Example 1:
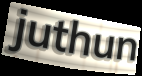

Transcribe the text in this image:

juthun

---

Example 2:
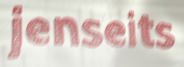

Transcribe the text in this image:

jenseits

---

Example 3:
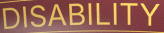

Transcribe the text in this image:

DISABILITY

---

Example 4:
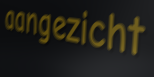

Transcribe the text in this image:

aangezicht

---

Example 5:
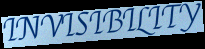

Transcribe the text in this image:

INVISIBILITY